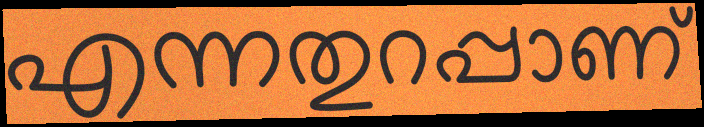
എന്നതുറപ്പാണ്